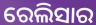
ରେଲିସାର